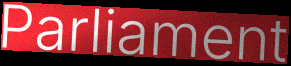
Parliament